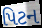
પિટન